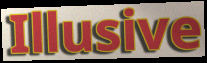
Illusive